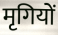
मृगियों